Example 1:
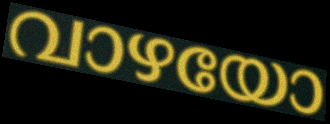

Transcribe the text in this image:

വാഴയോ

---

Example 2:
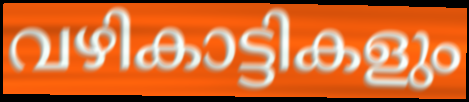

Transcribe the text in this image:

വഴികാട്ടികളും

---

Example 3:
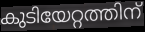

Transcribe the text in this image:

കുടിയേറ്റത്തിന്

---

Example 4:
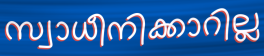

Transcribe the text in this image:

സ്വാധീനിക്കാറില്ല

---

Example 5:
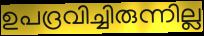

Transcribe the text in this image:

ഉപദ്രവിച്ചിരുന്നില്ല